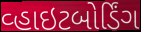
વ્હાઇટબોર્ડિંગ